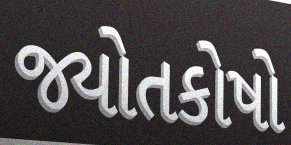
જ્યોતકોષો